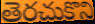
తెరచుకొని